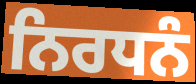
ਨਿਰਧਨੰ